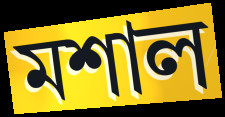
মশাল